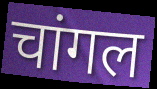
चांगल